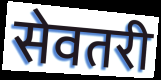
सेवतरी